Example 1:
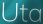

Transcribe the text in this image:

Uta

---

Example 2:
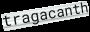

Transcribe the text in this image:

tragacanth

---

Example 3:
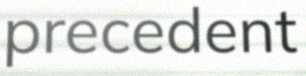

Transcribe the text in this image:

precedent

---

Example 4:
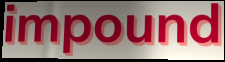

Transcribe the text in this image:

impound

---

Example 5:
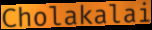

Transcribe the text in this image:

Cholakalai